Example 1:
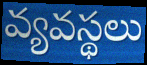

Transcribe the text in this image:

వ్యవస్థలు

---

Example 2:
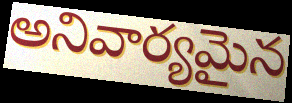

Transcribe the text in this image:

అనివార్యమైన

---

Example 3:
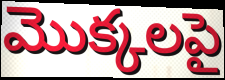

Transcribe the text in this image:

మొక్కలపై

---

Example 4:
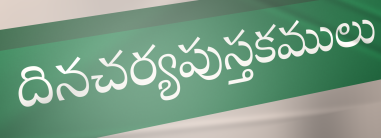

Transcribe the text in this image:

దినచర్యపుస్తకములు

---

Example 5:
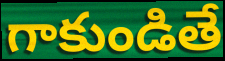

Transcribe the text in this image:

గాకుండితే